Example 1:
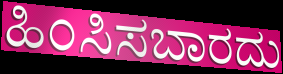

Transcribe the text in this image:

ಹಿಂಸಿಸಬಾರದು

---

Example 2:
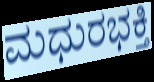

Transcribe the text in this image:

ಮಧುರಭಕ್ತಿ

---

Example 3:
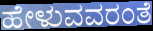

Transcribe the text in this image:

ಹೇಳುವವರಂತೆ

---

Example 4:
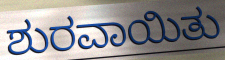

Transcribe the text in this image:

ಶುರವಾಯಿತು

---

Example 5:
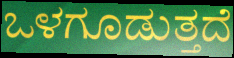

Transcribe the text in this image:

ಒಳಗೂಡುತ್ತದೆ